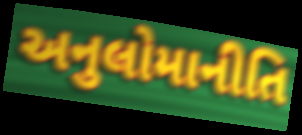
અનુલોમાનીતિ